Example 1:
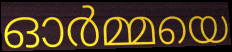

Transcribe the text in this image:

ഓർമ്മയെ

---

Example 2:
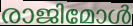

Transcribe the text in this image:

രാജിമോൾ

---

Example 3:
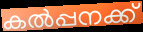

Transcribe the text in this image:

കൽപ്പനക്ക്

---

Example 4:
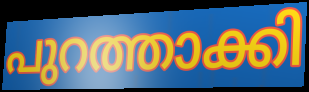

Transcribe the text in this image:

പുറത്താക്കി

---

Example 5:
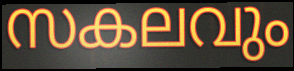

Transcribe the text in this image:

സകലവും